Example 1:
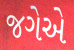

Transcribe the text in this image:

જગેએ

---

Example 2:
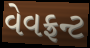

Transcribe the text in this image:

વેવફ્રન્ટ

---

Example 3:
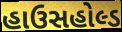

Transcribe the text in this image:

હાઉસહોલ્ડ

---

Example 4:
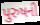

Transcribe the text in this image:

પુરુષની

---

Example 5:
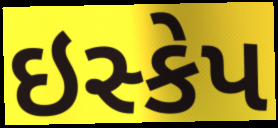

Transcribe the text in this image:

ઇસ્કેપ